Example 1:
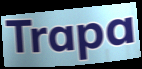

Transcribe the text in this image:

Trapa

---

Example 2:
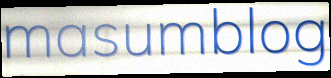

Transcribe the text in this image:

masumblog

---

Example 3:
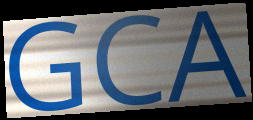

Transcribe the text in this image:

GCA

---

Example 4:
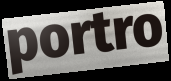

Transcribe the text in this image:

portro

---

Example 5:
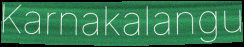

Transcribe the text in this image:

Karnakalangu